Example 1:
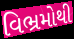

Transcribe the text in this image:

વિભ્રમોથી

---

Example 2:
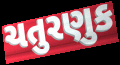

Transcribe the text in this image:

ચતુરણુક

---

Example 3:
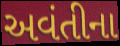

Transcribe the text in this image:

અવંતીના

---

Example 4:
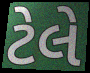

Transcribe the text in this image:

ટેલે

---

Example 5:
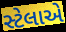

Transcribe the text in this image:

સ્ટેલાએ